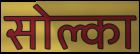
सोल्का